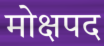
मोक्षपद